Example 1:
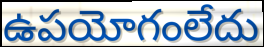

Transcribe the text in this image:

ఉపయోగంలేదు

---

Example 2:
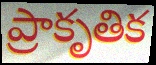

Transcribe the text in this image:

ప్రాకృతిక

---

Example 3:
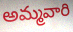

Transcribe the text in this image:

అమ్మవారి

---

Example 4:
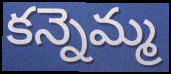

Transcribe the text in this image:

కన్నెమ్మ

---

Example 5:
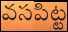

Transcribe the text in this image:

వసపిట్ట